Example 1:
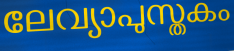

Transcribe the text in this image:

ലേവ്യാപുസ്തകം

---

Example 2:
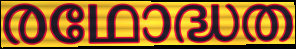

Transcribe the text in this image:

രഥോദ്ധത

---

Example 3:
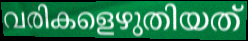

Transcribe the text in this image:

വരികളെഴുതിയത്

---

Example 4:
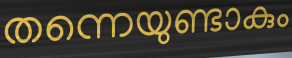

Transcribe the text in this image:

തന്നെയുണ്ടാകും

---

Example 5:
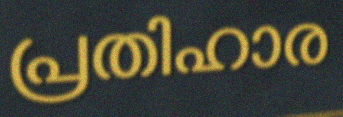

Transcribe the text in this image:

പ്രതിഹാര